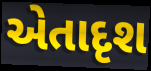
એતાદૃશ